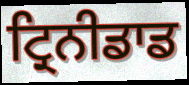
ਟ੍ਰਿਨੀਡਾਡ